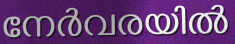
നേർവരയിൽ